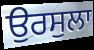
ਉਰਸੁਲਾ